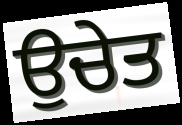
ਉਚੇਤ